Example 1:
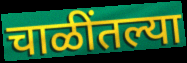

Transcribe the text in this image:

चाळींतल्या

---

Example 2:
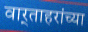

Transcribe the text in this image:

वार्ताहरांच्या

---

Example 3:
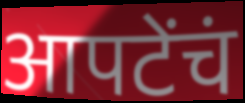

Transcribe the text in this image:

आपटेंचं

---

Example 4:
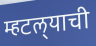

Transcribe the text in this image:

म्हटल्याची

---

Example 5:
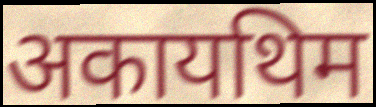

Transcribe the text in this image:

अकायथिम